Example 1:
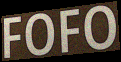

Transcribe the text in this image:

FOFO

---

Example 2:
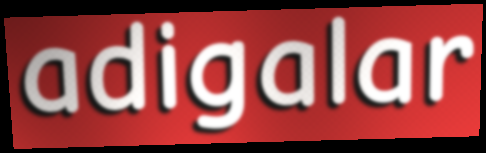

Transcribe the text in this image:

adigalar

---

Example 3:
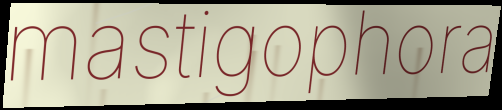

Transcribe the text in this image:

mastigophora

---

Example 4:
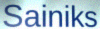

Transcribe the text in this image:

Sainiks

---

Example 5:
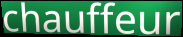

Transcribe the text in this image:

chauffeur